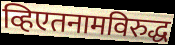
व्हिएतनामविरुद्ध